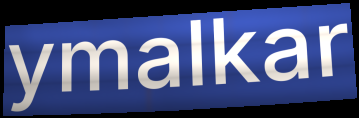
ymalkar